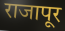
राजापूर